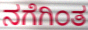
ನಗೆಗಿಂತ